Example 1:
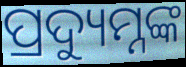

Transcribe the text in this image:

ପ୍ରଦ୍ୟୁମ୍ନଙ୍କ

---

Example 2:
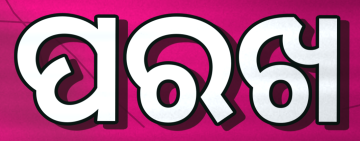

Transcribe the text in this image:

ପରଖ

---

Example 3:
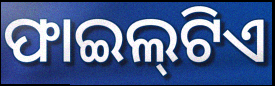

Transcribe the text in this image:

ଫାଇଲ୍‌ଟିଏ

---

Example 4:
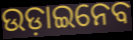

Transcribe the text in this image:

ଉଡ଼ାଇନେବ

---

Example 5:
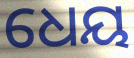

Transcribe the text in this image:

ଧେୟ